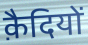
क़ैदियों